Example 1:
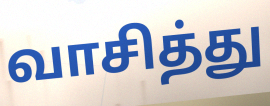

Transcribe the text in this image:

வாசித்து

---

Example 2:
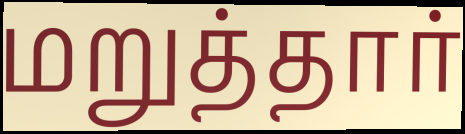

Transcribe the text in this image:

மறுத்தார்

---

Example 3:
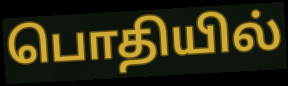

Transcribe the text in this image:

பொதியில்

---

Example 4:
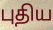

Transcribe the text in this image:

புதிய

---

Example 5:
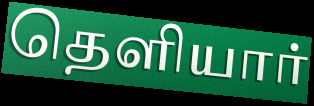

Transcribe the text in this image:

தெளியார்